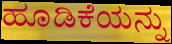
ಹೂಡಿಕೆಯನ್ನು